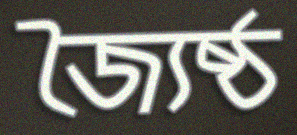
জ্যৈষ্ঠ